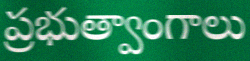
ప్రభుత్వాంగాలు